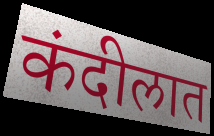
कंदीलात